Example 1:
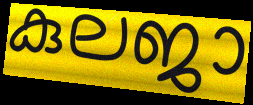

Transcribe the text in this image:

കുലജാ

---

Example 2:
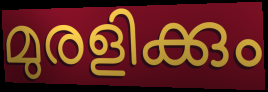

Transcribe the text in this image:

മുരളിക്കും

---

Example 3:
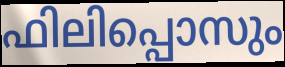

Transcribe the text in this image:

ഫിലിപ്പൊസും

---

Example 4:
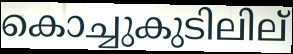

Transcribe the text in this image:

കൊച്ചുകുടിലില്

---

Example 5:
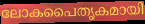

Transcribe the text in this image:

ലോകപൈതൃകമായി